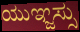
ಯುಞ್ಜಸ್ಸು